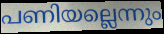
പണിയല്ലെന്നും